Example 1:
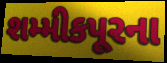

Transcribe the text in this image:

શમ્મીકપૂરના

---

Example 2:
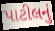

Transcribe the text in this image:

પાટીલનું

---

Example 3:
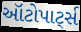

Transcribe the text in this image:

ઑટોપાર્ટ્સ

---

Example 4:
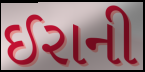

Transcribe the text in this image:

ઈરાની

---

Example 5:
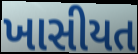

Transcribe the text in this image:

ખાસીયત